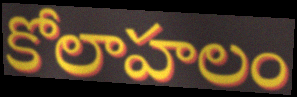
కోలాహలం